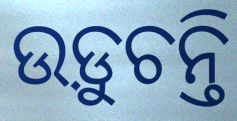
ଉଡ଼ୁଚନ୍ତି